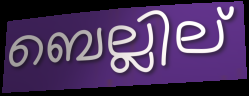
ബെല്ലില്